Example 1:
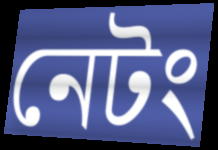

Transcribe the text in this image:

নেটং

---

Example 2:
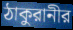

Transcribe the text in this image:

ঠাকুরানীর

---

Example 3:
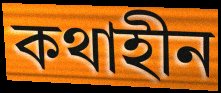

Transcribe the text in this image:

কথাহীন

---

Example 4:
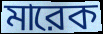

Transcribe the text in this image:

মারেক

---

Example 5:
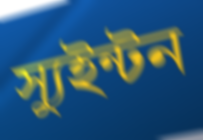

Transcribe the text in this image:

স্যুইন্টন